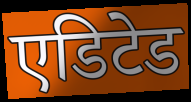
एडिटेड